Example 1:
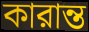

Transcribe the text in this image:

কারান্ত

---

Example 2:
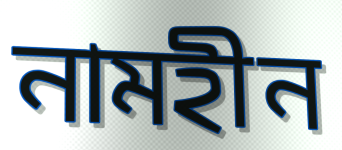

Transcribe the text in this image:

নামহীন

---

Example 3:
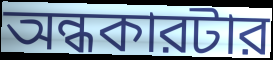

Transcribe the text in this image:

অন্ধকারটার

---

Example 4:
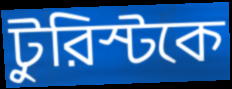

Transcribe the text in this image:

টুরিস্টকে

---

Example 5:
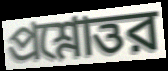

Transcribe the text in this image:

প্রশ্নোত্তর